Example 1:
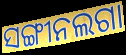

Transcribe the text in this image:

ସଙ୍ଗୀନଲଗା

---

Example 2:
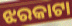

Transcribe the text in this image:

ଝରକାଟା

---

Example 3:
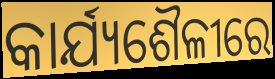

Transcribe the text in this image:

କାର୍ଯ୍ୟଶୈଳୀରେ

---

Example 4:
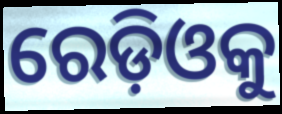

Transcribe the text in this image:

ରେଡ଼ିଓକୁ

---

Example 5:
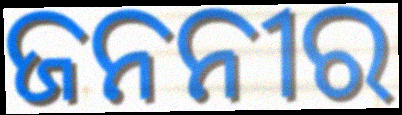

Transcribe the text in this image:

ଜନନୀର